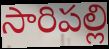
సారిపల్లి